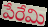
పేరేమి